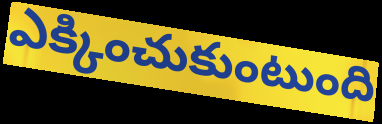
ఎక్కించుకుంటుంది